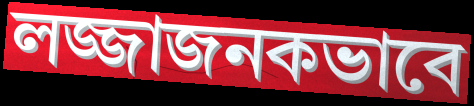
লজ্জাজনকভাবে